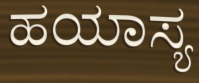
ಹಯಾಸ್ಯ